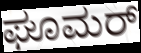
ಘೂಮರ್